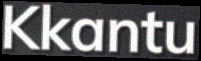
Kkantu